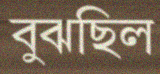
বুঝছিল